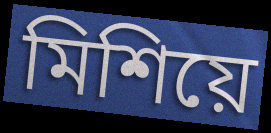
মিশিয়ে